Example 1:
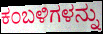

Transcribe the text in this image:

ಕಂಬಳಿಗಳನ್ನು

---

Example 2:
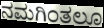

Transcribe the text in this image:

ನಮಗಿಂತಲೂ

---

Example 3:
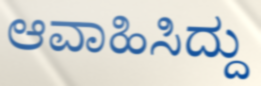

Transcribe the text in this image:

ಆವಾಹಿಸಿದ್ದು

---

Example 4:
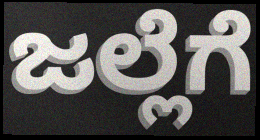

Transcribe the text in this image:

ಜಲ್ಲೆಗೆ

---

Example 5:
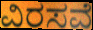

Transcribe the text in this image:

ವಿರಸವೆ